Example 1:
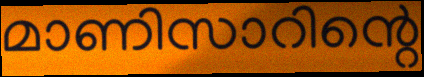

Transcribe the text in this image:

മാണിസാറിന്റെ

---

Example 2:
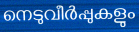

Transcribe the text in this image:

നെടുവീർപ്പുകളും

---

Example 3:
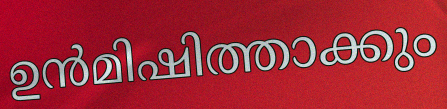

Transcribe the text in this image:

ഉൻമിഷിത്താക്കും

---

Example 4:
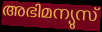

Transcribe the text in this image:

അഭിമന്യുസ്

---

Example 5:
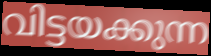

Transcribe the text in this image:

വിട്ടയക്കുന്ന